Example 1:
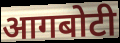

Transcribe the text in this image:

आगबोटी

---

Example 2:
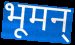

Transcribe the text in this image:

भूमन्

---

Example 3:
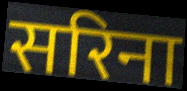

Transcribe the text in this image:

सरिना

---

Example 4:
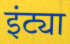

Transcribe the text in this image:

इंट्या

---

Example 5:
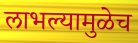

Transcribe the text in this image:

लाभल्यामुळेच